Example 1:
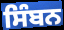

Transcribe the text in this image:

ਸਿੰਬਨ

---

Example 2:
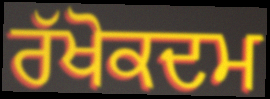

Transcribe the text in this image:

ਰੱਖੋਕਦਮ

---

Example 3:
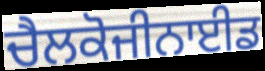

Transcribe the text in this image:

ਚੈਲਕੋਜੀਨਾਈਡ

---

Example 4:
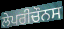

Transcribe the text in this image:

ਲੇਪਰੀਚੌਨਸ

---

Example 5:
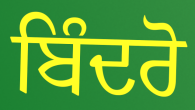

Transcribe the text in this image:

ਬਿੰਦਰੋ